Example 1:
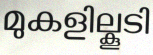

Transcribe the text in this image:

മുകളില്കൂടി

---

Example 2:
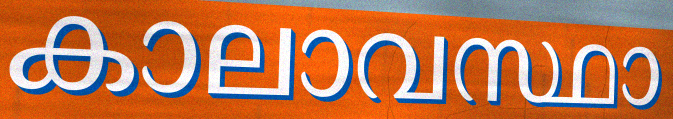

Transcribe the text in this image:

കാലാവസ്ഥാ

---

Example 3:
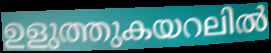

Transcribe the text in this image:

ഉളുത്തുകയറലിൽ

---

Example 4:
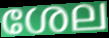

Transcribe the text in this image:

ശേല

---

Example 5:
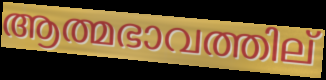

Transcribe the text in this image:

ആത്മഭാവത്തില്